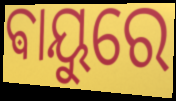
ଵାୟୁରେ